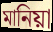
মানিয়া